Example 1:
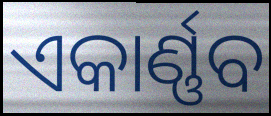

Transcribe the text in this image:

ଏକାର୍ଣ୍ଣବ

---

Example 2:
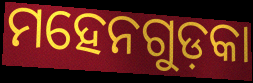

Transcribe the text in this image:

ମହେନଗୁଡ଼କା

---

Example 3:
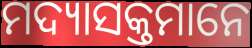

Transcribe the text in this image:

ମଦ୍ୟାସକ୍ତମାନେ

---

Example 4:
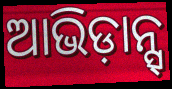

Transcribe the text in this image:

ଆଭିଡ଼ାନ୍ସ୍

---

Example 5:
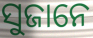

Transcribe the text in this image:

ସୁଜାନେ